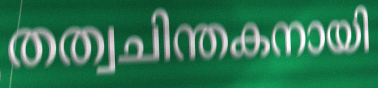
തത്വചിന്തകനായി